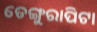
ଡେଙ୍ଗୁରାପିଟା